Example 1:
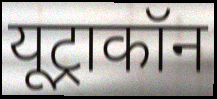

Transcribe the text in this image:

यूट्राकॉन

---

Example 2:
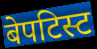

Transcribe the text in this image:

बेपटिस्ट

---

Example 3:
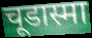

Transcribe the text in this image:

चूडास्मा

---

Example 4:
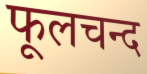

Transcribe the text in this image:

फूलचन्द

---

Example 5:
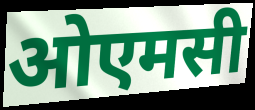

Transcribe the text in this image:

ओएमसी